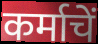
कर्माचें